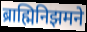
ब्राह्मिनिझमने